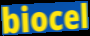
biocel